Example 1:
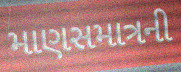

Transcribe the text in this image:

માણસમાત્રની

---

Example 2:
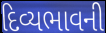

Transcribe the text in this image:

દિવ્યભાવની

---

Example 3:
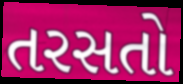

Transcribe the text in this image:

તરસતો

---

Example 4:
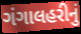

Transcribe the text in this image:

ગંગાલહરીનું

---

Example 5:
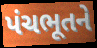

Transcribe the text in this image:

પંચભૂતને